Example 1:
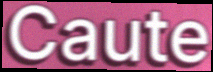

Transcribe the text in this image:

Caute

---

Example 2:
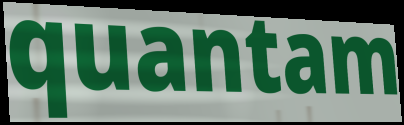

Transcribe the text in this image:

quantam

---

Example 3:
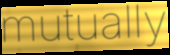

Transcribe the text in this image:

mutually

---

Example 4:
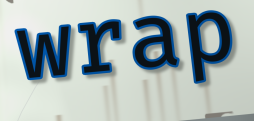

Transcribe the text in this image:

wrap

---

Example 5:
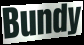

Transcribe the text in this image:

Bundy